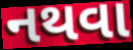
નથવા